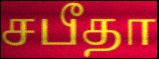
சபீதா